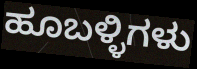
ಹೂಬಳ್ಳಿಗಳು